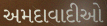
અમદાવાદીઓ